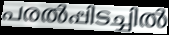
പരൽപ്പിടച്ചിൽ